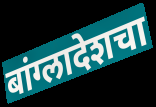
बांग्लादेशचा